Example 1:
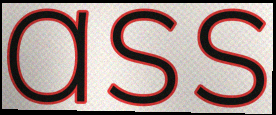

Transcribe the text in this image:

ass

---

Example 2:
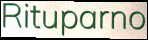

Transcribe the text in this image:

Rituparno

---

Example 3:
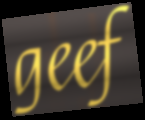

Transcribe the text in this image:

geef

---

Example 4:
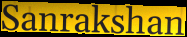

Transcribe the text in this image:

Sanrakshan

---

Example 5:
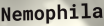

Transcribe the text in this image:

Nemophila